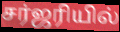
சர்ஜரியில்